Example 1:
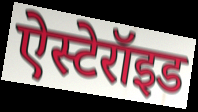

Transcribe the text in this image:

ऐस्टेरॉइड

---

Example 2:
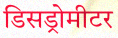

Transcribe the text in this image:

डिसड्रोमीटर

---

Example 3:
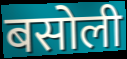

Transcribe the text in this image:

बसोली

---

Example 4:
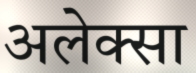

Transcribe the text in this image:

अलेक्‍सा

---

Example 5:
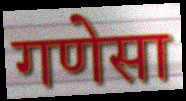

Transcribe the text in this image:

गणेसा